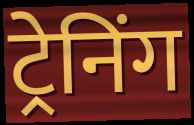
ट्रेनिंग